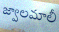
జ్వాలమాలీ